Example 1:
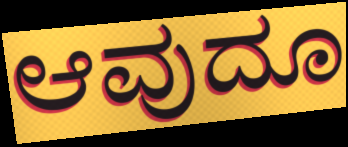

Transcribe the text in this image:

ಆವುದೂ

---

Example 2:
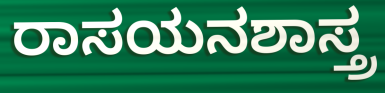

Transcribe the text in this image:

ರಾಸಯನಶಾಸ್ತ್ರ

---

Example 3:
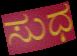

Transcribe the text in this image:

ಸುಧ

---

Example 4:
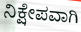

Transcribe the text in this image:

ನಿಕ್ಷೇಪವಾಗಿ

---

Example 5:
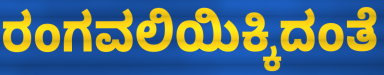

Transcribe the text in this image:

ರಂಗವಲಿಯಿಕ್ಕಿದಂತೆ